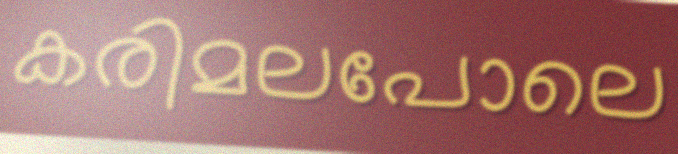
കരിമലപോലെ